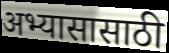
अभ्यासासाठी